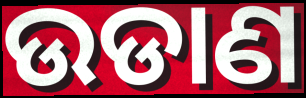
ଉଡାଣ